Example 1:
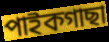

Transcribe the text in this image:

পাইকগাছা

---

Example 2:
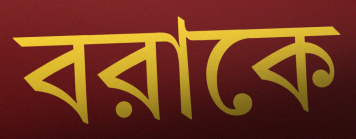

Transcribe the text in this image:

বরাকে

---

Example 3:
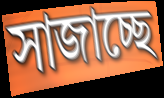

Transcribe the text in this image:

সাজাচ্ছে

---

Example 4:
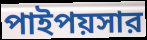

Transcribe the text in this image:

পাইপয়সার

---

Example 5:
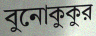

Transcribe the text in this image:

বুনোকুকুর